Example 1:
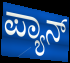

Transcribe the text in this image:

ಪ್ಯಾನ್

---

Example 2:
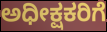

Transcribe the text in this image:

ಅಧೀಕ್ಷಕರಿಗೆ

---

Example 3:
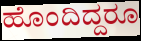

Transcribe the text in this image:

ಹೊಂದಿದ್ದರೂ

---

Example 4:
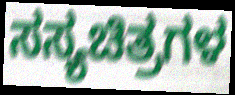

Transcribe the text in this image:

ಸಸ್ಯಚಿತ್ರಗಳ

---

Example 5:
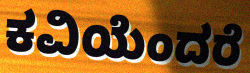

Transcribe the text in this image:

ಕವಿಯೆಂದರೆ